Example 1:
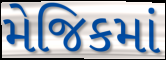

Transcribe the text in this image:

મેજિકમાં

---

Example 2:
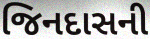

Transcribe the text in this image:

જિનદાસની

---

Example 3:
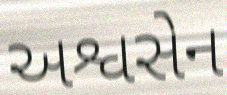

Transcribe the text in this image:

અશ્વસેન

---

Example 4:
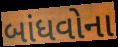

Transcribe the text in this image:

બાંધવોના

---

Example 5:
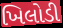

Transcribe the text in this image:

ખિલોડી